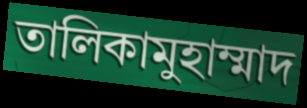
তালিকামুহাম্মাদ